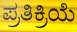
ಪ್ರತಿಕ್ರಿಯೆ